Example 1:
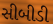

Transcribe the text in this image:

સીબીડી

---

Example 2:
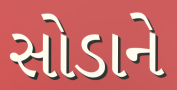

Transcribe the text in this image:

સોડાને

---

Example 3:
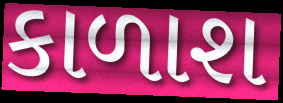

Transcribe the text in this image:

કાળાશ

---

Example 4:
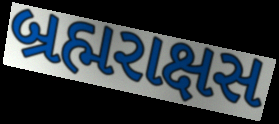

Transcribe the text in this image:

બ્રહ્મરાક્ષસ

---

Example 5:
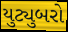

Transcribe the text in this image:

યુટ્યુબરો